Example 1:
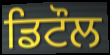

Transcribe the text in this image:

ਡਿਟੌਲ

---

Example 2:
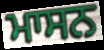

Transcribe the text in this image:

ਮਾਸਨ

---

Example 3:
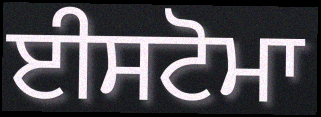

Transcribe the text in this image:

ਈਸਟੋਮਾ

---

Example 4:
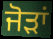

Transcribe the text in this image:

ਜੋਡ਼ਾਂ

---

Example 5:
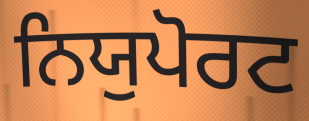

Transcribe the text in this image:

ਨਿਯੁਪੋਰਟ